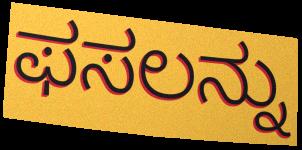
ಫಸಲನ್ನು